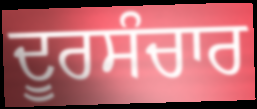
ਦੂਰਸੰਚਾਰ